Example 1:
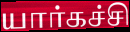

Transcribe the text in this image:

யார்கச்சி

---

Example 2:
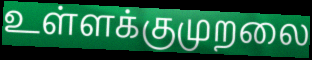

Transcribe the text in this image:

உள்ளக்குமுறலை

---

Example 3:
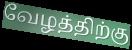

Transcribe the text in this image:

வேழத்திற்கு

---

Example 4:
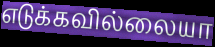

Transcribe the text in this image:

எடுக்கவில்லையா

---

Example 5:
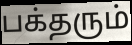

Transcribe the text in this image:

பக்தரும்